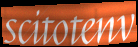
scitotenv